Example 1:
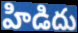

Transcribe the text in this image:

హిడిదు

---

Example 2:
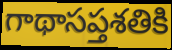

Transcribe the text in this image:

గాథాసప్తశతికి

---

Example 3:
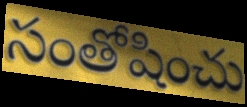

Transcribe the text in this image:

సంతోషించు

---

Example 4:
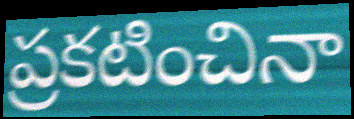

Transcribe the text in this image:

ప్రకటించినా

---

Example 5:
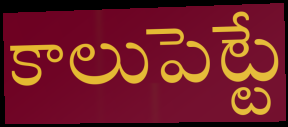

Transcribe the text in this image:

కాలుపెట్టే